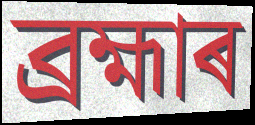
ব্ৰহ্মাৰ